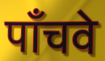
पाँचवे